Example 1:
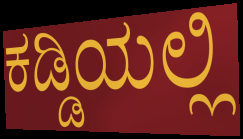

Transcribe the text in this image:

ಕಡ್ಡಿಯಲ್ಲಿ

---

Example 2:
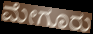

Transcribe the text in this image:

ಮೇಗೂರು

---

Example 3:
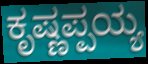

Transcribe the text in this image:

ಕೃಷ್ಣಪ್ಪಯ್ಯ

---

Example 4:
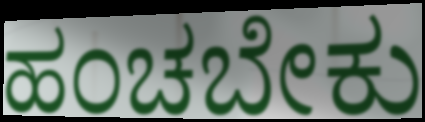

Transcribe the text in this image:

ಹಂಚಬೇಕು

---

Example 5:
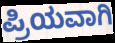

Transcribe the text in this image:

ಪ್ರಿಯವಾಗಿ